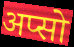
अप्सो